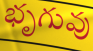
భృగువు